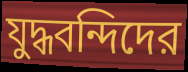
যুদ্ধবন্দিদের